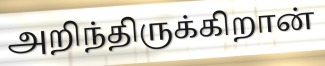
அறிந்திருக்கிறான்